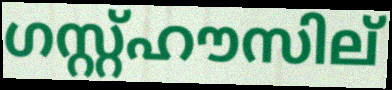
ഗസ്റ്റ്ഹൗസില്